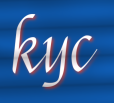
kyc